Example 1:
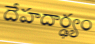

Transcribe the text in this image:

దేహదార్ఢ్యం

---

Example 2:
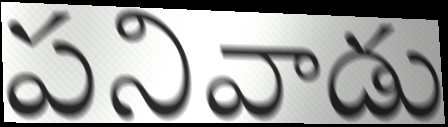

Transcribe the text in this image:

పనివాడు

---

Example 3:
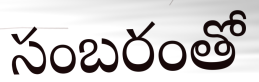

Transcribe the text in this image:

సంబరంతో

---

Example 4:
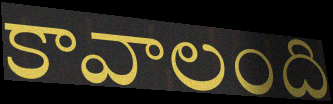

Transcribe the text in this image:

కావాలంది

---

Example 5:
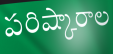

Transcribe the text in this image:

పరిష్కారాల